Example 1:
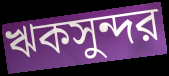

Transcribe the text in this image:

ঋকসুন্দর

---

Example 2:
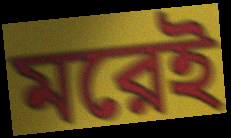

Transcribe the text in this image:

মরেই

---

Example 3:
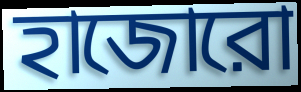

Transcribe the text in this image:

হাজোরো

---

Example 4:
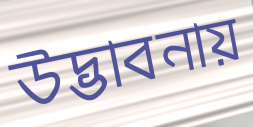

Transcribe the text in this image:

উদ্ভাবনায়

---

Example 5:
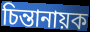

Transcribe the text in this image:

চিন্তানায়ক